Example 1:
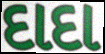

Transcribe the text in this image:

દાદા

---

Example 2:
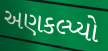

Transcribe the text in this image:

અણકલ્પ્યો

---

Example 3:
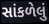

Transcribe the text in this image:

સાંકળેલું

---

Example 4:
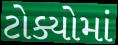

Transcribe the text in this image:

ટોક્યોમાં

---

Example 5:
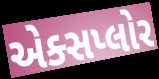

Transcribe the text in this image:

એક્સપ્લોર